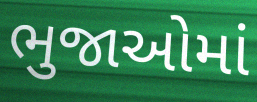
ભુજાઓમાં